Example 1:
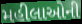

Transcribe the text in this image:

મહીલાઓની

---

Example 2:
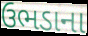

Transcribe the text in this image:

ઉભડાના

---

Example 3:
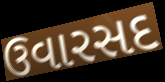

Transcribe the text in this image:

ઉવારસદ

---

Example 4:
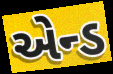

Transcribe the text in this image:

એન્ડ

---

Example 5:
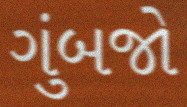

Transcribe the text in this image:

ગુંબજો